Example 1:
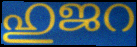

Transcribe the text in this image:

ഹുജറ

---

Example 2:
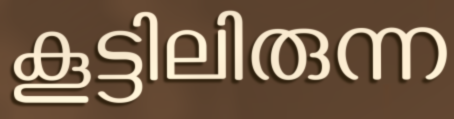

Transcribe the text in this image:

കൂട്ടിലിരുന്ന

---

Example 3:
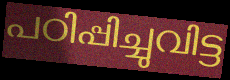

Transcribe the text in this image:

പഠിപ്പിച്ചുവിട്ട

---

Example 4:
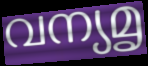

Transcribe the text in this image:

വന്യമൃ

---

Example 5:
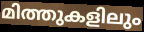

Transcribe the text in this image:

മിത്തുകളിലും